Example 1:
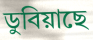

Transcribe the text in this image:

ডুবিয়াছে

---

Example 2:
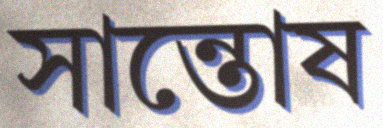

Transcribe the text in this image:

সান্তোষ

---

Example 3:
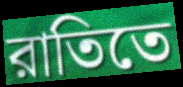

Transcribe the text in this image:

রাতিতে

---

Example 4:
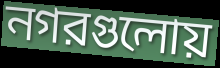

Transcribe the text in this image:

নগরগুলোয়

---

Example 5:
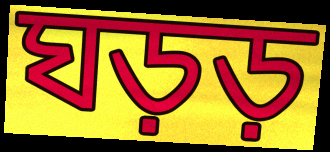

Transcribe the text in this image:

ঘড়ড়